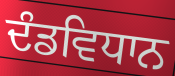
ਦੰਡਵਿਧਾਨ